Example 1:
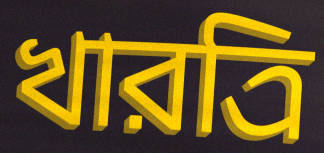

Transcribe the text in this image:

খারত্রি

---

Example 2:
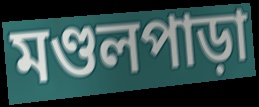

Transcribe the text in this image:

মণ্ডলপাড়া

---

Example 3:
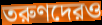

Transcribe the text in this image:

তরুণদেরও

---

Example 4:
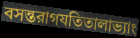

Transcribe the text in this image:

বসন্তরাগযতিতালাভ্যাং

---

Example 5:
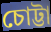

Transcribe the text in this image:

চোট্টা